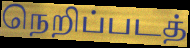
நெறிப்படத்